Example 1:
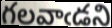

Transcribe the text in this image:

గలవాఁడని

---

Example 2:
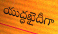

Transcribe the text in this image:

యుద్ధఖైదీగా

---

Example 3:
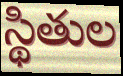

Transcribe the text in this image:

స్థితుల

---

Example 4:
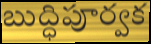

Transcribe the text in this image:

బుద్ధిపూర్వక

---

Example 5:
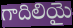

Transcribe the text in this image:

గాదిలియై